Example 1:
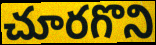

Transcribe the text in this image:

చూరగొని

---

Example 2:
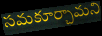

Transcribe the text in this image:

సమకూర్చామని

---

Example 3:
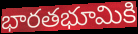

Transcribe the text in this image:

భారతభూమికి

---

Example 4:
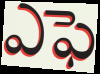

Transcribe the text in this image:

ఎఫె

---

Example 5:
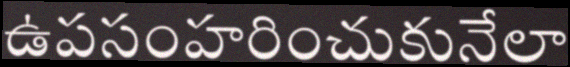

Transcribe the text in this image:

ఉపసంహరించుకునేలా